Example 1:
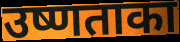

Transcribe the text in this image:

उष्णताका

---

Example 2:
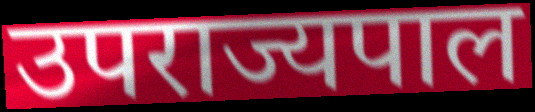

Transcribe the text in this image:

उपराज्यपाल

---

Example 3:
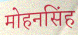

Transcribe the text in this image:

मोहनसिंह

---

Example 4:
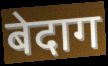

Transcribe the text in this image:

बेदाग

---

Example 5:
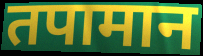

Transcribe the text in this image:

तपामान